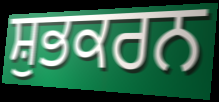
ਸ਼ੁਭਕਰਨ